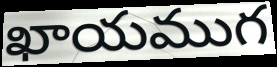
ఖాయముగ